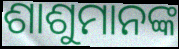
ଶାଶୁମାନଙ୍କ